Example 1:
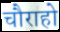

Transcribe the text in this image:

चौराहो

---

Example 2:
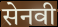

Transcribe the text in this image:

सेनवी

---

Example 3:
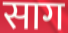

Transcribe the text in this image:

साग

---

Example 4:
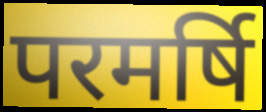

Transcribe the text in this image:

परमर्षि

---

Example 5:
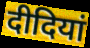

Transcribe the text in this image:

दीदियां